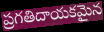
ప్రగతిదాయకమైన